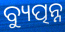
ବ୍ୟୁତ୍ପନ୍ନ